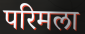
परिमला